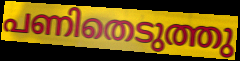
പണിതെടുത്തു